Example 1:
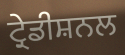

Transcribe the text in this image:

ਟ੍ਰੇਡੀਸ਼ਨਲ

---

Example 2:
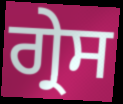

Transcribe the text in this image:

ਗ੍ਰੇਸ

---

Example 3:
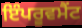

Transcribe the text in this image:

ਇੰਪਰੂਵਮੈਂਟ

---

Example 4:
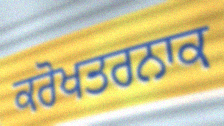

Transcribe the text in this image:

ਕਰੋਖਤਰਨਾਕ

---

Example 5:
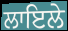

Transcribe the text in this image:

ਲਾਇਲੇ